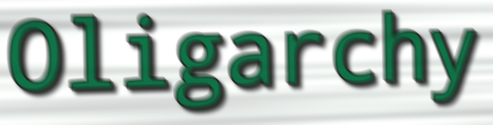
Oligarchy